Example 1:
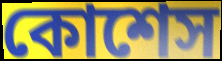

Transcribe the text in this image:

কোশেস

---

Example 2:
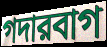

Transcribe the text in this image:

গদারবাগ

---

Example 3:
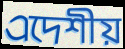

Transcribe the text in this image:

এদেশীয়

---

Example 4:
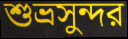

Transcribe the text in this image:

শুভ্রসুন্দর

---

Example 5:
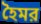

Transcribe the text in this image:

হৈমর